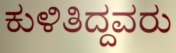
ಕುಳಿತಿದ್ದವರು